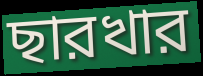
ছারখার